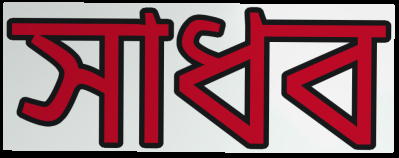
সাধব